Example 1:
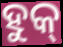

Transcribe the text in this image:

ହୁକ୍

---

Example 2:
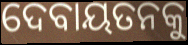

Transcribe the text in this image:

ଦେବାୟତନକୁ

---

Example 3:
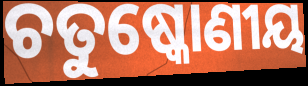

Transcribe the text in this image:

ଚତୁଷ୍କୋଣୀୟ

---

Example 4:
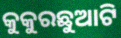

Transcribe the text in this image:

କୁକୁରଛୁଆଟି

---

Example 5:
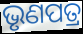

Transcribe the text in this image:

ଭୃଣପତ୍ର